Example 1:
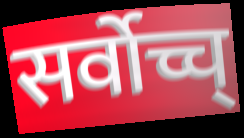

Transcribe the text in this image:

सर्वोच्च्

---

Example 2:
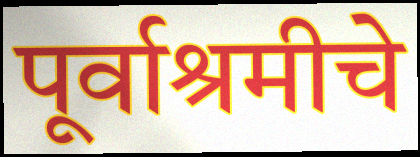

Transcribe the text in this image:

पूर्वाश्रमीचे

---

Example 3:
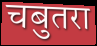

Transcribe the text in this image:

चबुतरा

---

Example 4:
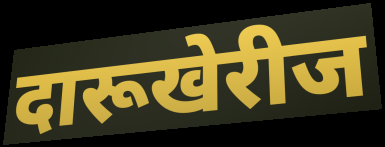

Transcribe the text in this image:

दारूखेरीज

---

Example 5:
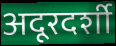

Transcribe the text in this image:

अदूरदर्शी